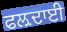
ਫਲ਼ਦਾਈ